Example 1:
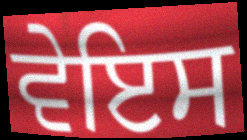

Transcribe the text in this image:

ਵੇਇਸ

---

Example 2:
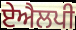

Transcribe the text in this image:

ਏਐਲਪੀ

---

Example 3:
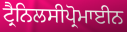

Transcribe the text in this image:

ਟ੍ਰੈਨਿਲਸੀਪ੍ਰੋਮਾਈਨ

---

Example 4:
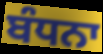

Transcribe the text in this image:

ਬੰਧਨਾ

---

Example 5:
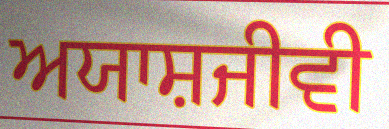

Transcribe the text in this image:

ਅਯਾਸ਼ਜੀਵੀ